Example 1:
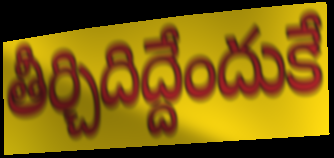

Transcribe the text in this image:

తీర్చిదిద్దేందుకే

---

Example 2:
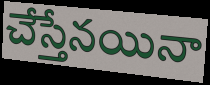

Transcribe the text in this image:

చేస్తేనయినా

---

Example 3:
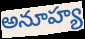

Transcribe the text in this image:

అనూహ్య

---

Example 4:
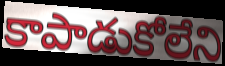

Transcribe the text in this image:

కాపాడుకోలేని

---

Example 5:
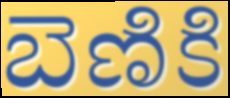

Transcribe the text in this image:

బెణికి